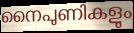
നൈപുണികളും